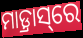
ମାଡ଼୍ରାସ୍‌ରେ